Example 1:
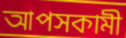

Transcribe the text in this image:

আপসকামী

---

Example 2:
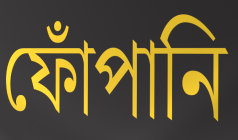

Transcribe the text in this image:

ফোঁপানি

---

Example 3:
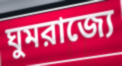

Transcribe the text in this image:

ঘুমরাজ্যে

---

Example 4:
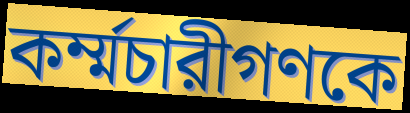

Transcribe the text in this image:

কর্ম্মচারীগণকে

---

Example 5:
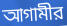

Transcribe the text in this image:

আগামীর